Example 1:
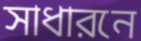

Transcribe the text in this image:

সাধারনে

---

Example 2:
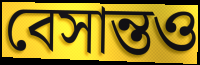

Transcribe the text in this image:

বেসান্তও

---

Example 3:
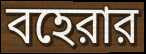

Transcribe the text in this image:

বহেরার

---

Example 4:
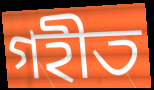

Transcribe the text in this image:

গহীত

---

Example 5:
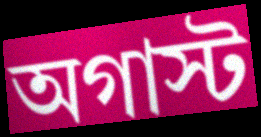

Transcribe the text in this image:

অগাস্ট